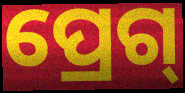
ପ୍ରେଗ୍